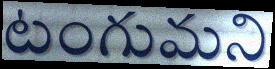
టంగుమని